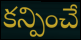
కన్పించే